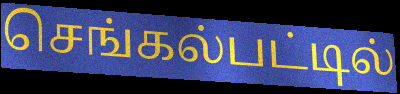
செங்கல்பட்டில்